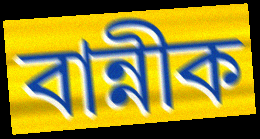
বান্নীক